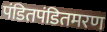
पंडितपंडितमरण